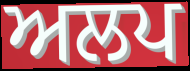
ਅਲਪ